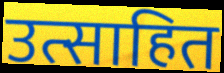
उत्साहित